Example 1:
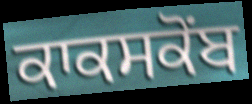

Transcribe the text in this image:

ਕਾਕਸਕੋਂਬ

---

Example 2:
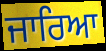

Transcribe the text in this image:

ਜਾਰਿਆ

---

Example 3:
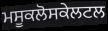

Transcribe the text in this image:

ਮਸੂਕਲੋਸਕੇਲਟਲ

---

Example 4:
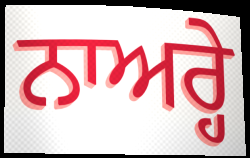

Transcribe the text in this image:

ਨਾਅਰ੍ਹੇ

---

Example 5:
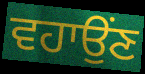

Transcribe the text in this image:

ਵਹਾਉਂਣ